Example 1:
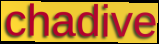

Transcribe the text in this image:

chadive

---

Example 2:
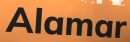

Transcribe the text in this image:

Alamar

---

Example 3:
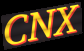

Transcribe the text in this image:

CNX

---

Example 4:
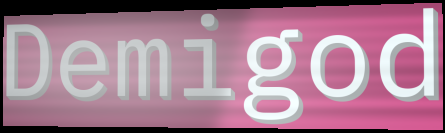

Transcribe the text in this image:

Demigod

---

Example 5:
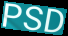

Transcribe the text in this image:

PSD